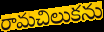
రామచిలుకను